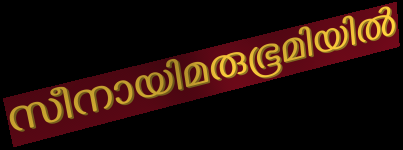
സീനായിമരുഭൂമിയിൽ